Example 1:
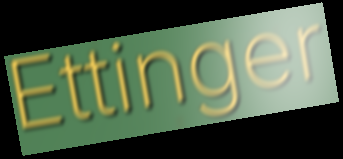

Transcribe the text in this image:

Ettinger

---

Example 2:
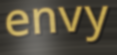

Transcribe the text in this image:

envy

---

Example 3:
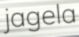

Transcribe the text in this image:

jagela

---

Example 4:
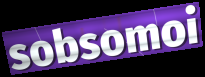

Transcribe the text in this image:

sobsomoi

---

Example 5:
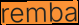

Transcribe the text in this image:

remba